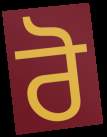
ਰੋ